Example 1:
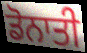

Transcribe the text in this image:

ਡੋਨਾਤੀ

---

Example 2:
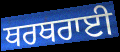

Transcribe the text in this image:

ਥਰਥਰਾਈ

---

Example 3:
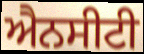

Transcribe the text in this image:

ਐਨਸੀਟੀ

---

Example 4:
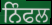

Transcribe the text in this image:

ਨਿੰਫਲ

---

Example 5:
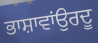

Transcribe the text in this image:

ਭਾਸ਼ਾਵਾਂਉਰਦੂ